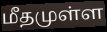
மீதமுள்ள